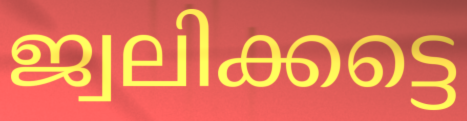
ജ്വലിക്കട്ടെ